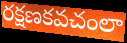
రక్షణకవచంలా